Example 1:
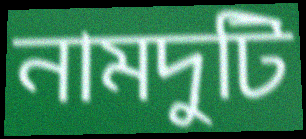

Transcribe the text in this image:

নামদুটি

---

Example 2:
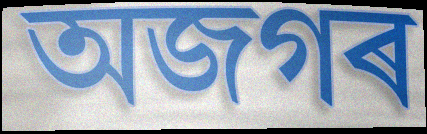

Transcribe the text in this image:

অজগৰ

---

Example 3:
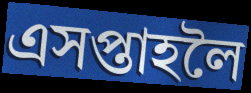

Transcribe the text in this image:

এসপ্তাহলৈ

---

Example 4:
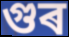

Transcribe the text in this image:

গুৰ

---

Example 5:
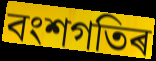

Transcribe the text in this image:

বংশগতিৰ